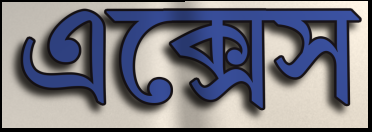
এক্সেস